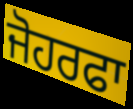
ਜੋਹਰਫਾ